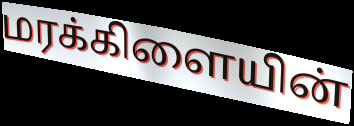
மரக்கிளையின்